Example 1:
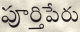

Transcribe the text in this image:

పూర్తిపేరు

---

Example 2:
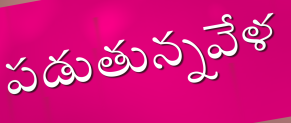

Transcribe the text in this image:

పడుతున్నవేళ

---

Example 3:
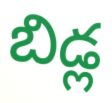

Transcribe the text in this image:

బిడ్ల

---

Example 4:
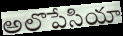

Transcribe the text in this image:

అలొపేసియా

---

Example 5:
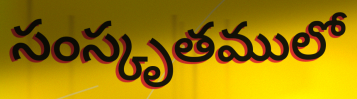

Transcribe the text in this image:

సంస్కృతములో